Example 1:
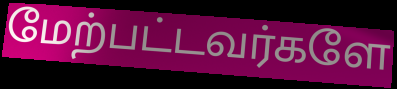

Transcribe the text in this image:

மேற்பட்டவர்களே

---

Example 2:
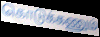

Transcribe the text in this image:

கொடுக்கணும்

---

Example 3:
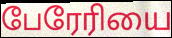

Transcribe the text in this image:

பேரேரியை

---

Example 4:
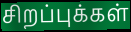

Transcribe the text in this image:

சிறப்புக்கள்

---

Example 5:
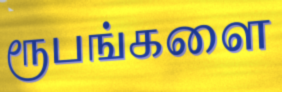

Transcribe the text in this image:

ரூபங்களை